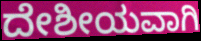
ದೇಶೀಯವಾಗಿ